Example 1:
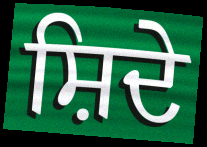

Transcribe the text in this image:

ਸ਼ਿਦੇ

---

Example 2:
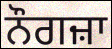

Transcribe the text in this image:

ਨੌਗਜ਼ਾ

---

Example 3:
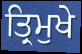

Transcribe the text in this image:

ਤ੍ਰਿਮੁਖੇ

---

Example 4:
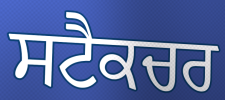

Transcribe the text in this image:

ਸਟੈਕਚਰ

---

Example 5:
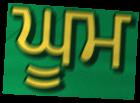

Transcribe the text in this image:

ਘੂਮ